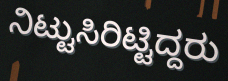
ನಿಟ್ಟುಸಿರಿಟ್ಟಿದ್ದರು